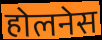
होलनेस